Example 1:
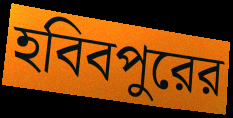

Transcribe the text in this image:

হবিবপুরের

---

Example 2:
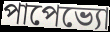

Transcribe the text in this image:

পাপেভ্যো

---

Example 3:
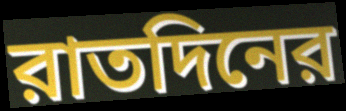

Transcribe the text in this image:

রাতদিনের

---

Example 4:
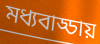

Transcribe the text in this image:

মধ্যবাড্ডায়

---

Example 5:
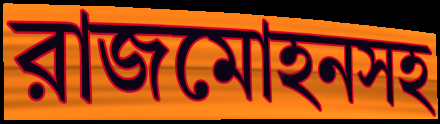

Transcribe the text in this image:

রাজমোহনসহ